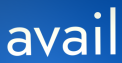
avail